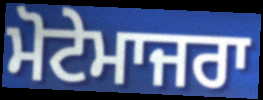
ਮੋਟੇਮਾਜਰਾ